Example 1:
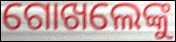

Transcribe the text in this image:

ଗୋଖଲେଙ୍କୁ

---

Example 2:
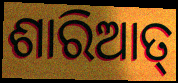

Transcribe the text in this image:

ଶାରିଆତ୍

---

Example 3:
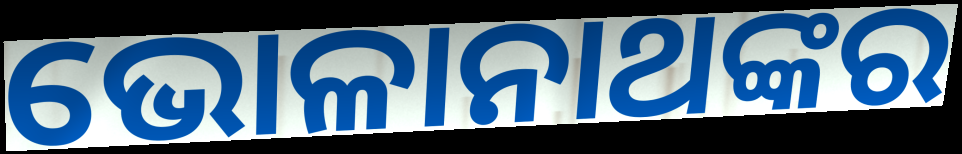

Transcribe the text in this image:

ଭୋଳାନାଥଙ୍କର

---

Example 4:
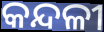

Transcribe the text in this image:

କନ୍ଦଳୀ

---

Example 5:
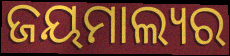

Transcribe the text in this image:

ଜୟମାଲ୍ୟର